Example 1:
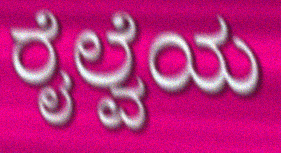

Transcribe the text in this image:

ರೈಲ್ವೆಯ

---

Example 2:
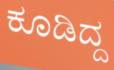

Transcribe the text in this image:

ಕೂಡಿದ್ದ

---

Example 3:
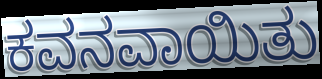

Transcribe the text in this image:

ಕವನವಾಯಿತು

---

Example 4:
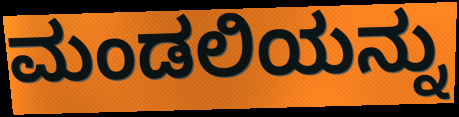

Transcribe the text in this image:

ಮಂಡಲಿಯನ್ನು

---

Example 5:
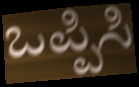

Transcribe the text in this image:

ಒಪ್ಪಿಸಿ